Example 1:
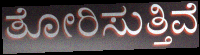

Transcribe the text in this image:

ತೋರಿಸುತ್ತಿವೆ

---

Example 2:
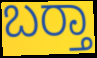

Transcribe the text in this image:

ಬರ‍್ತಾ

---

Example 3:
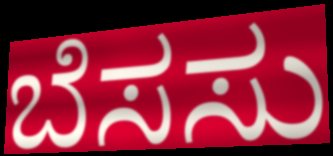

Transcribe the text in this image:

ಬೆಸಸು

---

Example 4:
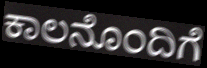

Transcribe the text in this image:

ಕಾಲನೊಂದಿಗೆ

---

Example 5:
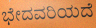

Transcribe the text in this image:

ಭೇದವರಿಯದೆ